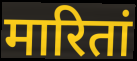
मारितां